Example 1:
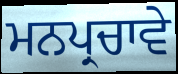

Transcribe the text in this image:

ਮਨਪ੍ਰਚਾਵੇ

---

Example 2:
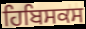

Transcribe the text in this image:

ਹਿਬਿਸਕਸ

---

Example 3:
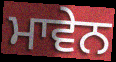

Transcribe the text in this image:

ਮਾਵੇਨ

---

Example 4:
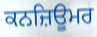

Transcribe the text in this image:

ਕਨਜ਼ਿਊਮਰ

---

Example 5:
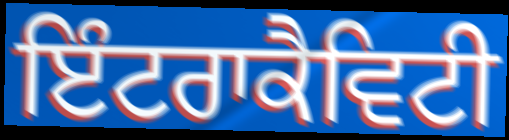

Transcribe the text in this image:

ਇੰਟਰਾਕੈਵਿਟੀ